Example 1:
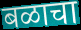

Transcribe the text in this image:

बळाचा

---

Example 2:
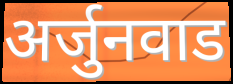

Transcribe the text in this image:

अर्जुनवाड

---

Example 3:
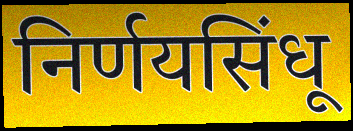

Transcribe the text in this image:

निर्णयसिंधू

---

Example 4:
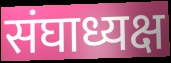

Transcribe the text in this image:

संघाध्यक्ष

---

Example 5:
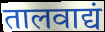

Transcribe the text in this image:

तालवाद्यं